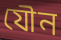
যৌন